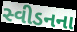
સ્વીડનના